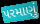
પરમાણું